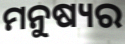
ମନୁଷ୍ୟର